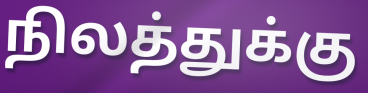
நிலத்துக்கு